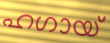
ഹഗായ്